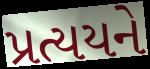
પ્રત્યયને